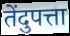
तेंदुपत्ता